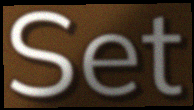
Set